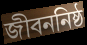
জীবননিষ্ঠ